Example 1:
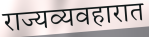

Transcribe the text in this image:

राज्यव्यवहारात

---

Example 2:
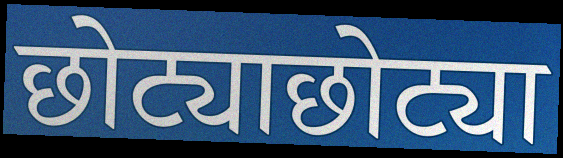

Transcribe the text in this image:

छोट्याछोट्या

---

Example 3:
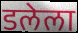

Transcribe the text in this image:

डलेला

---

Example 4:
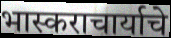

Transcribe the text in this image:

भास्कराचार्याचे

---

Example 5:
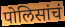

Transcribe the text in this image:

पोलिसांचं